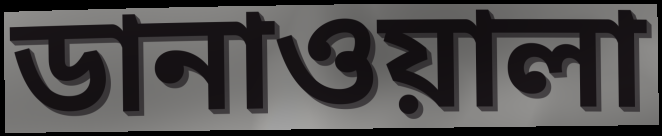
ডানাওয়ালা